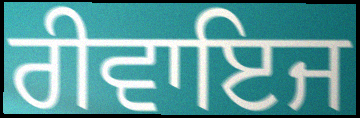
ਰੀਵਾਇਜ